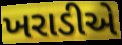
ખરાડીએ